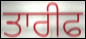
ਤਾਰੀਫ